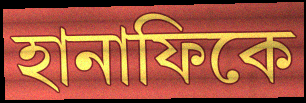
হানাফিকে